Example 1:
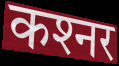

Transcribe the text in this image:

कश्‍नर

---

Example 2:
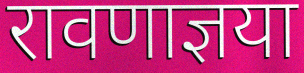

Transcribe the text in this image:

रावणाज्ञया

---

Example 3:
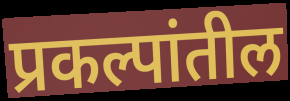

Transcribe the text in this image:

प्रकल्पांतील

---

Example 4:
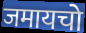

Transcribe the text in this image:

जमायचो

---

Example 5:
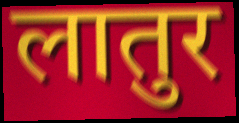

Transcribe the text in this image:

लातुर